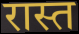
रास्त